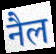
नैल